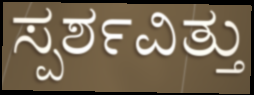
ಸ್ಪರ್ಶವಿತ್ತು